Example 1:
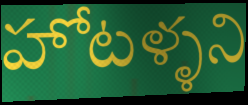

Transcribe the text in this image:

హోటళ్ళని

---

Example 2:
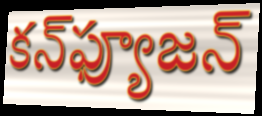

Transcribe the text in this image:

కన్‌ఫ్యూజన్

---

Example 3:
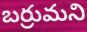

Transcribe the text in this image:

బర్రుమని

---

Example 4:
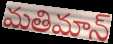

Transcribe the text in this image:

మతిమాన్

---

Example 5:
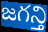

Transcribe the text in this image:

జగన్తి